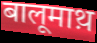
बालूमाथ़